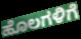
ಹೊಲಗಳಿಗೆ